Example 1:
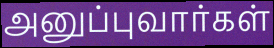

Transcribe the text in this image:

அனுப்புவார்கள்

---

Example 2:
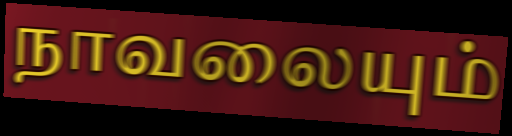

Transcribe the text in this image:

நாவலையும்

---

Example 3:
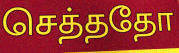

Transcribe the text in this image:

செத்ததோ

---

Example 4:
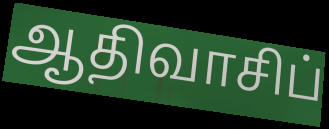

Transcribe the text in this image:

ஆதிவாசிப்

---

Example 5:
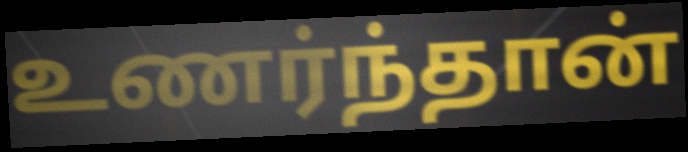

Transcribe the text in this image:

உணர்ந்தான்